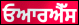
ਓਆਰਐੱਸ